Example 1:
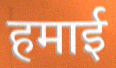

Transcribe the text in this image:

हमाई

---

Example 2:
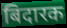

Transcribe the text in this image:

बिदारक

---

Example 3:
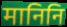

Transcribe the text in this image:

मानिनि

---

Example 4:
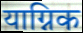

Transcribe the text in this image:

याग्निक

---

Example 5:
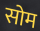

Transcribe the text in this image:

सोम